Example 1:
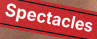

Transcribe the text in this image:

Spectacles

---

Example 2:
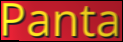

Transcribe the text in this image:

Panta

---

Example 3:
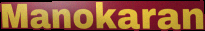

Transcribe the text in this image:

Manokaran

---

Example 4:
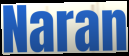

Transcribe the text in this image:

Naran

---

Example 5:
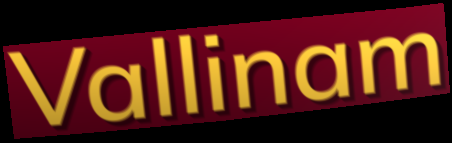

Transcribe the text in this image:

Vallinam